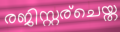
രജിസ്റ്റര്ചെയ്ത